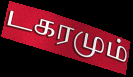
டகரமும்